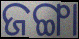
ଜଙ୍ଗା